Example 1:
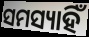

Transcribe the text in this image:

ସମସ୍ୟାହିଁ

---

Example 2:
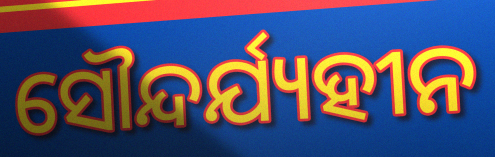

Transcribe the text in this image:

ସୌନ୍ଦର୍ଯ୍ୟହୀନ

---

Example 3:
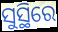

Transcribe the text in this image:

ସୁସ୍ଥିରେ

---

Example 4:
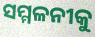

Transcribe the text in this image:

ସମ୍ମଳନୀକୁ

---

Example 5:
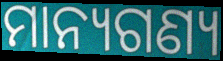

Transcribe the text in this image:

ମାନ୍ୟଗଣ୍ୟ